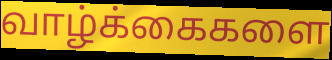
வாழ்க்கைகளை